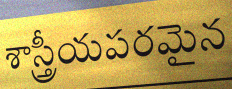
శాస్త్రీయపరమైన